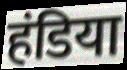
हंडिया